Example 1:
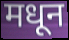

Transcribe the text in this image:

मधून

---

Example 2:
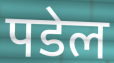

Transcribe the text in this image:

पडेल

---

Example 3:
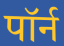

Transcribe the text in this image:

पॉर्न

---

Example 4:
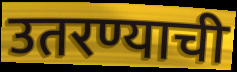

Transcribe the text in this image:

उतरण्याची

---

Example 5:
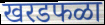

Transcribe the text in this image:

खरडफळा